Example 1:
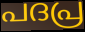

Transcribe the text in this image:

പദപ്ര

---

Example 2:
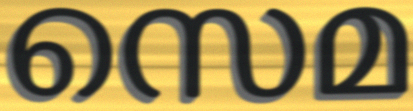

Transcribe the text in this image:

സെമ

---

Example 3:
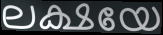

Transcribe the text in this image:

ലക്ഷയേ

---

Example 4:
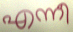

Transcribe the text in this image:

എന്നീ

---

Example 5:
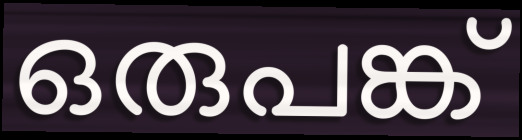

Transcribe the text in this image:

ഒരുപങ്ക്